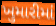
ખુમારીમાં